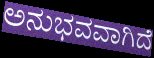
ಅನುಭವವಾಗಿದೆ